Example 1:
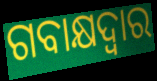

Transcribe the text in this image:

ଗବାକ୍ଷଦ୍ୱାର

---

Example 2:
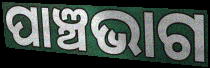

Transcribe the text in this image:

ପାଞ୍ଚଭାଗ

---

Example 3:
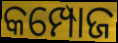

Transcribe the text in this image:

କମ୍ପୋଜ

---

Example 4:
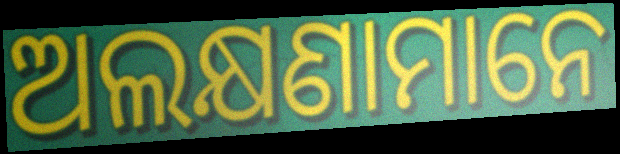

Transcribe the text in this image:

ଅଲକ୍ଷଣାମାନେ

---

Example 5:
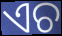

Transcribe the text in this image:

ଏଚ